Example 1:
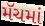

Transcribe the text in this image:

મૅચમાં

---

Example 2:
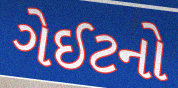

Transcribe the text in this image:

ગેઈટનો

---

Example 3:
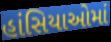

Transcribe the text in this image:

હાંસિયાઓમાં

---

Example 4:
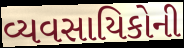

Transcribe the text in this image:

વ્યવસાયિકોની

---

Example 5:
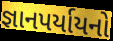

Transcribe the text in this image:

જ્ઞાનપર્યાયનો